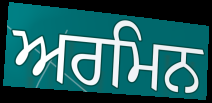
ਅਰਮਿਨ